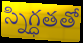
స్నిగ్ధతతో